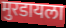
मुरडायला